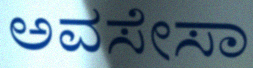
ಅವಸೇಸಾ